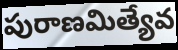
పురాణమిత్యేవ